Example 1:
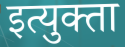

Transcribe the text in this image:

इत्युक्ता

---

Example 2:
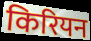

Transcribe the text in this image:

किरियन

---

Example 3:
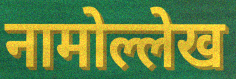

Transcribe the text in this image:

नामोल्लेख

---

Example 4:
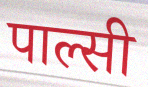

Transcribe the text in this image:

पाल्सी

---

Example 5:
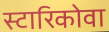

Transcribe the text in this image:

स्टारिकोवा